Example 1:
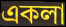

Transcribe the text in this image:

একলা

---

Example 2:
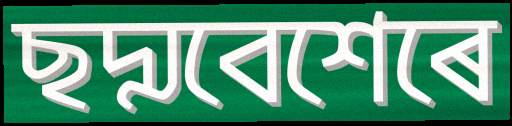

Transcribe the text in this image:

ছদ্মবেশেৰে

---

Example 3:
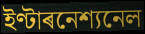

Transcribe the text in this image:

ইণ্টাৰনেশ্যনেল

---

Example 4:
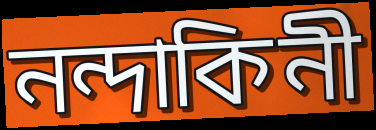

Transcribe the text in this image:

নন্দাকিনী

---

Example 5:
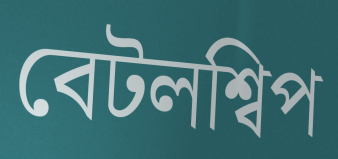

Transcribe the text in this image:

বেটলশ্বিপ